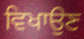
ਵਿਖਾਉਣ